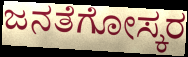
ಜನತೆಗೋಸ್ಕರ